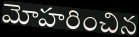
మోహరించిన